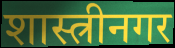
शास्त्रीनगर